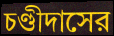
চণ্ডীদাসের